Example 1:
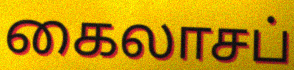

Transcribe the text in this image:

கைலாசப்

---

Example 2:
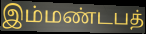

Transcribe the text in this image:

இம்மண்டபத்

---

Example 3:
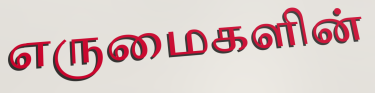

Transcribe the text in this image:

எருமைகளின்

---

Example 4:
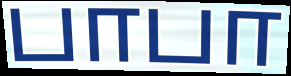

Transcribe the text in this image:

பாபா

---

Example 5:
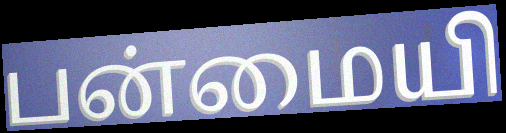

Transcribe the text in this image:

பன்மையி